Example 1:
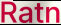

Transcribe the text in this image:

Ratn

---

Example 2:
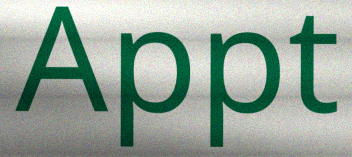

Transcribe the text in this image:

Appt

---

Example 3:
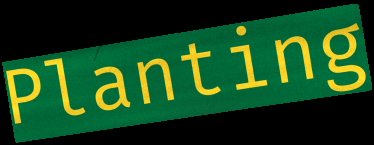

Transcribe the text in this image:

Planting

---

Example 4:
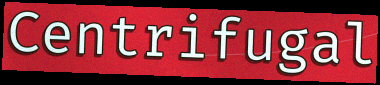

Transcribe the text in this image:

Centrifugal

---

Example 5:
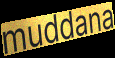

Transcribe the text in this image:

muddana